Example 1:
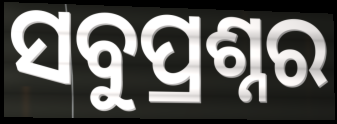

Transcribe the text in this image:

ସବୁପ୍ରଶ୍ନର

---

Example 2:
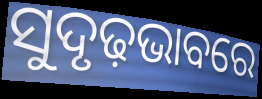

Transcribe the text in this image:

ସୁଦୃଢ଼ଭାବରେ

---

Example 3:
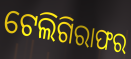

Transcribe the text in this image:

ଟେଲିଗିରାଫର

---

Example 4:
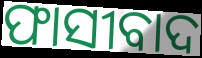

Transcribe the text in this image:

ଫାସୀବାଦ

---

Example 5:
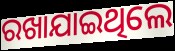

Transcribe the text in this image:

ରଖାଯାଇଥିଲେ